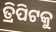
ତ୍ରିପିଟକୁ